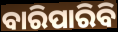
ବାରିପାରିବି